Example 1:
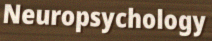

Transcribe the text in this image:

Neuropsychology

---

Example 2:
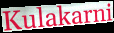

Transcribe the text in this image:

Kulakarni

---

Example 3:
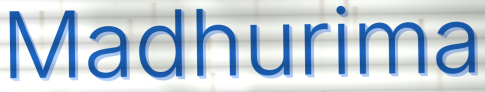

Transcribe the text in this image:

Madhurima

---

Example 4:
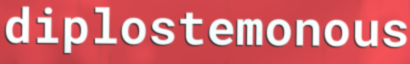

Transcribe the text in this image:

diplostemonous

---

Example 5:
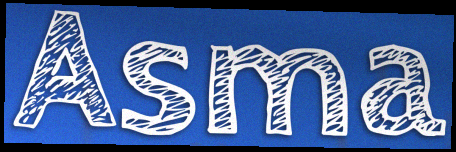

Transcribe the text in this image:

Asma